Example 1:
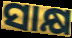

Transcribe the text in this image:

ସାକ୍ଷ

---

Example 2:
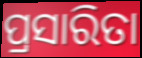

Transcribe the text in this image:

ପ୍ରସାରିତା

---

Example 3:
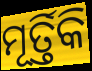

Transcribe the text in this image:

ମୂର୍ତ୍ତିକି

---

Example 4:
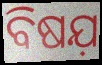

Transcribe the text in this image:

ବିଷଯ଼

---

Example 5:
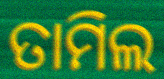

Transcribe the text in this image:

ତାମିଲ